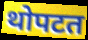
थोपटत